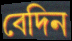
বেদিন